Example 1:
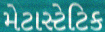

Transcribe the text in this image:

મેટાસ્ટેટિક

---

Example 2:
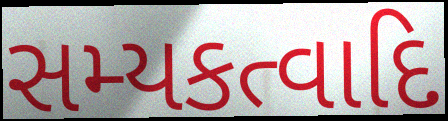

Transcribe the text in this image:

સમ્યકત્વાદિ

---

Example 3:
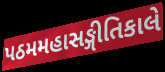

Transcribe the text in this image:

પઠમમહાસઙ્ગીતિકાલે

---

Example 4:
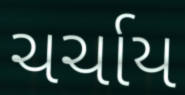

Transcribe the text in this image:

ચર્ચાય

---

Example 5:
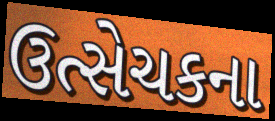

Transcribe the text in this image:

ઉત્સેચકના